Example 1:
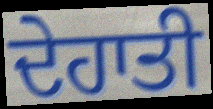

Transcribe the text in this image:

ਦੇਹਾਤੀ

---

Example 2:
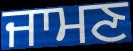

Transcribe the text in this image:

ਜਾਮਣ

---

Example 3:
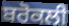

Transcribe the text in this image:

ਬਰੋਕਲੀ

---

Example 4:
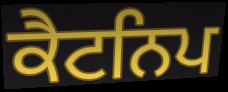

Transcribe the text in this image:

ਕੈਟਨਿਪ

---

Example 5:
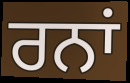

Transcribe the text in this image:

ਰਨਾਂ